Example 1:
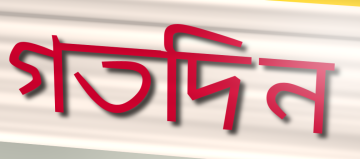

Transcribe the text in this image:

গতদিন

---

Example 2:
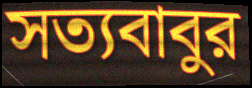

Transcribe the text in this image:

সত্যবাবুর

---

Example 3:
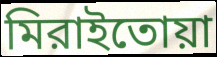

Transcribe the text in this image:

মিরাইতোয়া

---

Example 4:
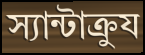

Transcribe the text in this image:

স্যান্টাক্রুয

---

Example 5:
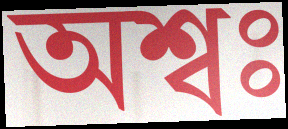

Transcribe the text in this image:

অশ্বঃ